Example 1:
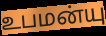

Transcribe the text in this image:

உபமன்யு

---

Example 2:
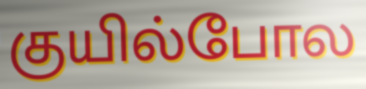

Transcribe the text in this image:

குயில்போல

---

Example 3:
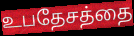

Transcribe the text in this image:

உபதேசத்தை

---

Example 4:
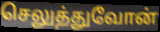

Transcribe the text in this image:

செலுத்துவோன்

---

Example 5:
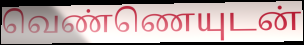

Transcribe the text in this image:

வெண்ணெயுடன்